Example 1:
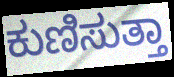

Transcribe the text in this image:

ಕುಣಿಸುತ್ತಾ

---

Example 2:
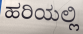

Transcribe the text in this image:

ಹರಿಯಲ್ಲಿ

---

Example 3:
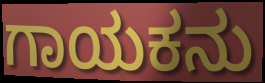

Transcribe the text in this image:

ಗಾಯಕನು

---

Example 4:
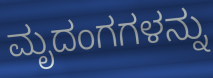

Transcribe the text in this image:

ಮೃದಂಗಗಳನ್ನು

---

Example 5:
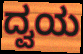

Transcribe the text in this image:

ದ್ವಯ